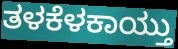
ತಳಕೆಳಕಾಯ್ತು